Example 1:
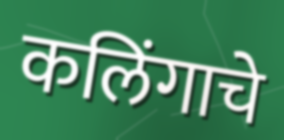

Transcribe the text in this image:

कलिंगाचे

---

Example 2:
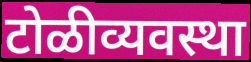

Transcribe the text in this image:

टोळीव्यवस्था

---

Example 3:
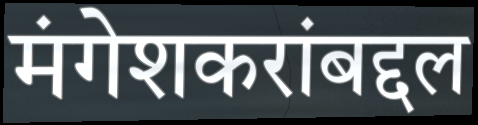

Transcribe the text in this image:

मंगेशकरांबद्दल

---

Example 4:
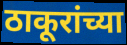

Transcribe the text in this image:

ठाकूरांच्या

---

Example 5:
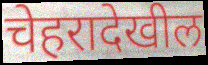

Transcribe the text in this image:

चेहरादेखील